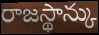
రాజస్థాన్కు